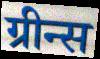
ग्रीन्स